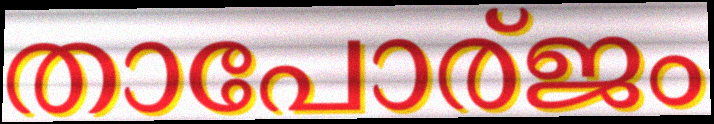
താപോര്ജം